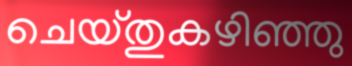
ചെയ്തുകഴിഞ്ഞു